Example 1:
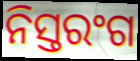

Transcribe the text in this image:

ନିସ୍ତରଂଗ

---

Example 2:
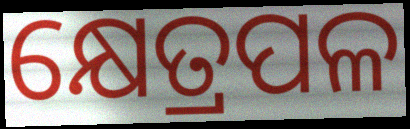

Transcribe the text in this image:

କ୍ଷେତ୍ରପଳ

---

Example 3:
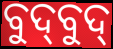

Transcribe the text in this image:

ବୁଦ୍‍ବୁଦ୍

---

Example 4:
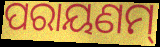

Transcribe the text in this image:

ପରାୟଣମ୍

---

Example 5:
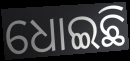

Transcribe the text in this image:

ଧୋଇଛି